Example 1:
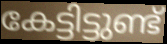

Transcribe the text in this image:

കേട്ടിട്ടുണ്ട്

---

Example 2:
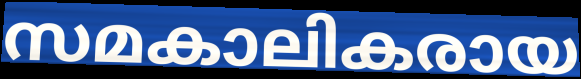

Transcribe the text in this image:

സമകാലികരായ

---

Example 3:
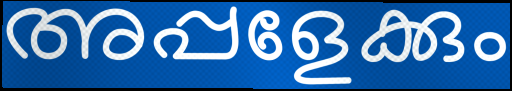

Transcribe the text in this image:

അപ്പളേക്കും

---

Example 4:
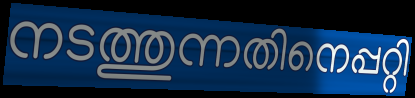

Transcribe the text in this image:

നടത്തുന്നതിനെപ്പറ്റി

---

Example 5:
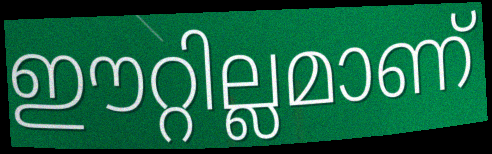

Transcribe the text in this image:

ഈറ്റില്ലമാണ്